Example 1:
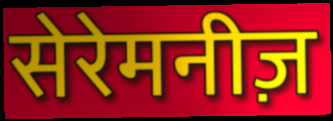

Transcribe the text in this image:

सेरेमनीज़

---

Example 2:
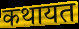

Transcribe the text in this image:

कथायत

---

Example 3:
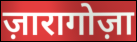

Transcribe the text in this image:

ज़ारागोज़ा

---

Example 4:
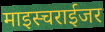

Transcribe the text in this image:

माइस्चराईजर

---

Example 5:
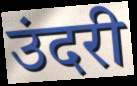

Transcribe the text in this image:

उंदरी